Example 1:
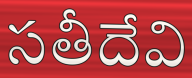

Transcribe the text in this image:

సతీదేవి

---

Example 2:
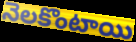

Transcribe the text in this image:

నెలకొంటాయి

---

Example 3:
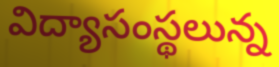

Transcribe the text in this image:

విద్యాసంస్థలున్న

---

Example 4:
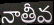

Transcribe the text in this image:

నాతీవ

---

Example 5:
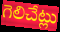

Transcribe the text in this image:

గెలిచేట్లు